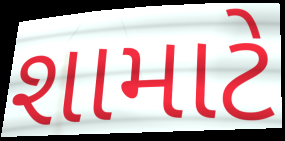
શામાટે